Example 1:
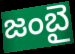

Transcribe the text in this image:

జంబై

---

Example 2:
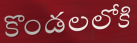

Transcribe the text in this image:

కొండలలోకి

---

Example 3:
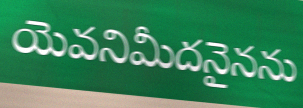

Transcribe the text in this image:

యెవనిమీదనైనను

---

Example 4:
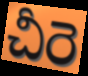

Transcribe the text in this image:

చీరె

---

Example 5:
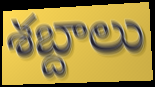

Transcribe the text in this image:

శబ్దాలు